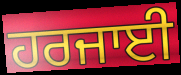
ਹਰਜਾਈ